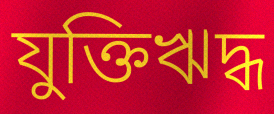
যুক্তিঋদ্ধ